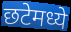
छटेमध्ये